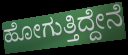
ಹೋಗುತ್ತಿದ್ದೇನೆ